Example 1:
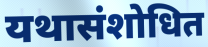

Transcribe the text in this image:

यथासंशोधित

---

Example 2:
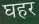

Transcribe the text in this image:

घहर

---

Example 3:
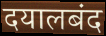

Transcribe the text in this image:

दयालबंद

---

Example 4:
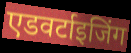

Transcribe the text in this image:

एडवर्टाइजिंग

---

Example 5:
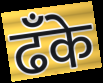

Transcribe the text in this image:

ढँके